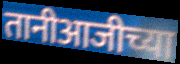
तानीआजीच्या